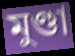
মুণ্ডা